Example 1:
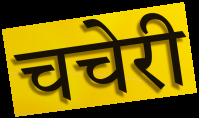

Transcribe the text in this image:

चचेरी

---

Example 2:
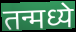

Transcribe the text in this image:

तन्मध्ये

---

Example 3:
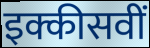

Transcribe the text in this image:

इक्‍कीसवीं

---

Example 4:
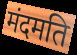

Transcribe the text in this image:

मंदमति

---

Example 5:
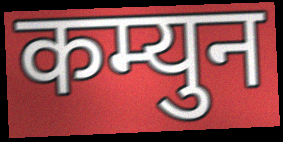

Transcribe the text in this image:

कम्युन